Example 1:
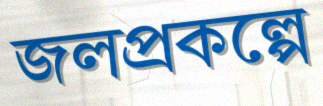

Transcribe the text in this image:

জলপ্রকল্পে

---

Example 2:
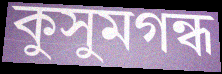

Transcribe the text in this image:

কুসুমগন্ধ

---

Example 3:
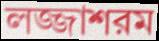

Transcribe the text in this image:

লজ্জাশরম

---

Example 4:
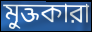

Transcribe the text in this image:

মুক্তকারা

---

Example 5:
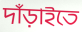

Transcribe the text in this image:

দাঁড়াইতে